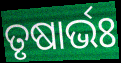
ତୃଷାର୍ଭଃ